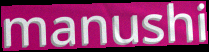
manushi